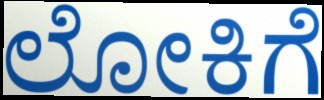
ಲೋಕಿಗೆ